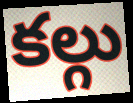
కల్గు